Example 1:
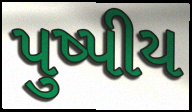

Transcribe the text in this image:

પુષ્પીય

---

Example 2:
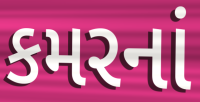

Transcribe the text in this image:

કમરનાં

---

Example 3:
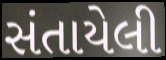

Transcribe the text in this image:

સંતાયેલી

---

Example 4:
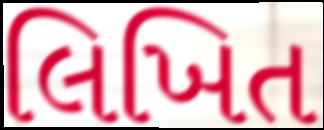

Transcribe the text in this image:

લિખિત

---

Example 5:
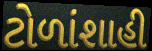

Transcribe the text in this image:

ટોળાંશાહી